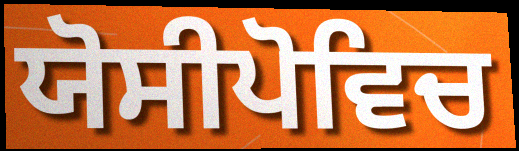
ਯੋਸੀਪੋਵਿਚ